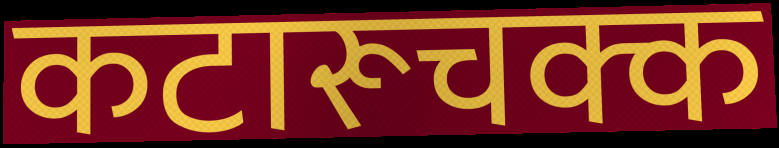
कटारूचक्क